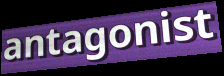
antagonist